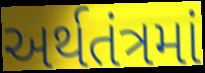
અર્થતંત્રમાં